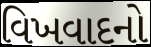
વિખવાદનો